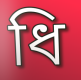
ধি